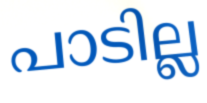
പാടില്ല